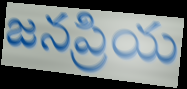
జనప్రియ